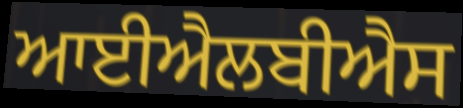
ਆਈਐਲਬੀਐਸ